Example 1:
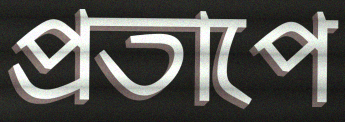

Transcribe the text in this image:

প্রতাপে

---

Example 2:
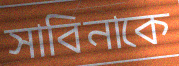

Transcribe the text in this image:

সাবিনাকে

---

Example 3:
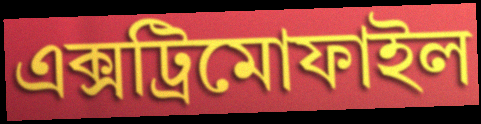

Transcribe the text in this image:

এক্সট্রিমোফাইল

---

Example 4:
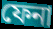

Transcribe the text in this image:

ফেনা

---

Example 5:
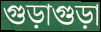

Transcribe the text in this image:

গুড়াগুড়া